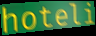
hoteli